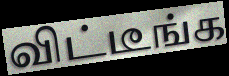
விட்டீங்க